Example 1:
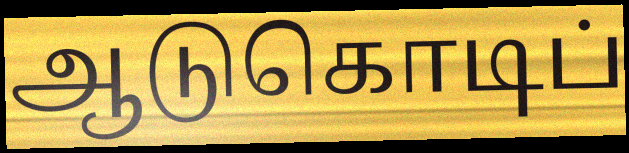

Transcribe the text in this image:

ஆடுகொடிப்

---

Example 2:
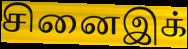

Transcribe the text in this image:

சினைஇக்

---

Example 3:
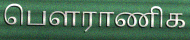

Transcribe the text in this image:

பௌராணிக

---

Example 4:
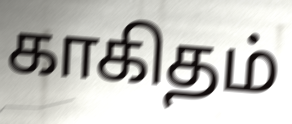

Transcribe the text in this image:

காகிதம்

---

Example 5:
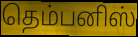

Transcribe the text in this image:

தெம்பனிஸ்